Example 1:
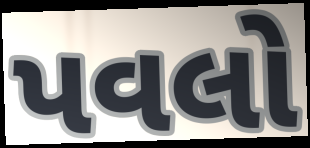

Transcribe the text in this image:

પવલો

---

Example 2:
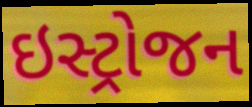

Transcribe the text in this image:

ઇસ્ટ્રોજન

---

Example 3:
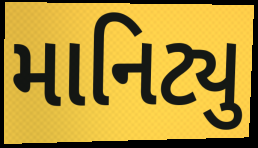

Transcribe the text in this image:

માનિટ્યુ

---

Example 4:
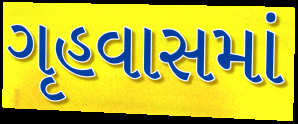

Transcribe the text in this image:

ગૃહવાસમાં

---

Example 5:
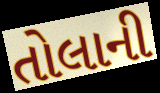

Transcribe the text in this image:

તોલાની